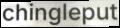
chingleput